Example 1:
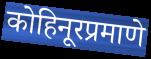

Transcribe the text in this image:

कोहिनूरप्रमाणे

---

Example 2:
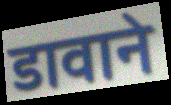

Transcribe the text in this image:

डावाने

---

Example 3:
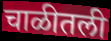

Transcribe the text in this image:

चाळीतली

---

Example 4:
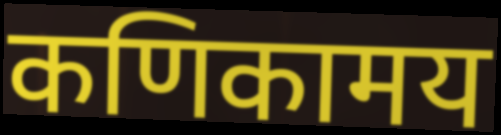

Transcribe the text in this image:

कणिकामय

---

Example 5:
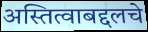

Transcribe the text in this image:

अस्तित्वाबद्दलचे